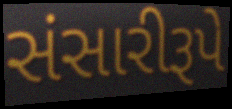
સંસારીરૂપે